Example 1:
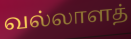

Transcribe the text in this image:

வல்லாளத்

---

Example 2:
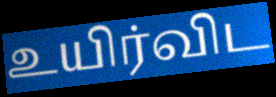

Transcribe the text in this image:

உயிர்விட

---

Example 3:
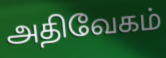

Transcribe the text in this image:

அதிவேகம்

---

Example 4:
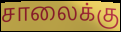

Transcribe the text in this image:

சாலைக்கு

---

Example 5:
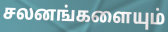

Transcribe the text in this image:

சலனங்களையும்